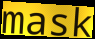
mask